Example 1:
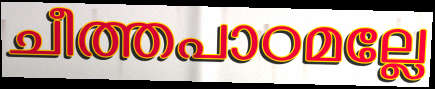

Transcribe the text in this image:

ചീത്തപാഠമല്ലേ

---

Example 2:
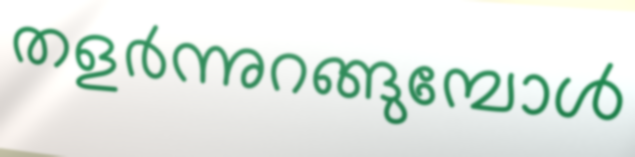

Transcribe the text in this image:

തളർന്നുറങ്ങുമ്പോൾ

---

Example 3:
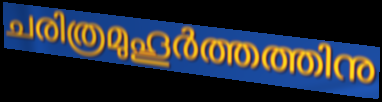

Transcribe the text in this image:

ചരിത്രമുഹൂർത്തത്തിനു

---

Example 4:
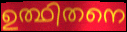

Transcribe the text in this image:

ഉത്ഥിതനെ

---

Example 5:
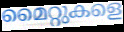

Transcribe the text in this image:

മൈറ്റുകളെ